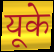
यूके